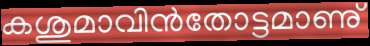
കശുമാവിൻതോട്ടമാണു്